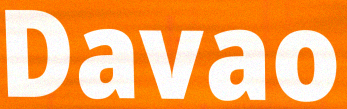
Davao